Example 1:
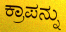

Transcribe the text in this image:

ಕ್ರಾಪನ್ನು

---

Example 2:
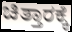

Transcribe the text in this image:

ಚಿತ್ತಾರಕ್ಕೆ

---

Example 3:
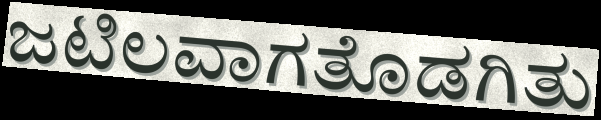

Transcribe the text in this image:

ಜಟಿಲವಾಗತೊಡಗಿತು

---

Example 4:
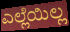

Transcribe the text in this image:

ಎಲ್ಲೆಯಿಲ್ಲ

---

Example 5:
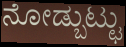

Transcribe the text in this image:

ನೋಡ್ಬುಟ್ಟು